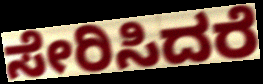
ಸೇರಿಸಿದರೆ